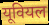
यूवियल